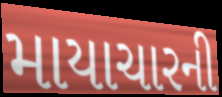
માયાચારની